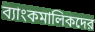
ব্যাংকমালিকদের